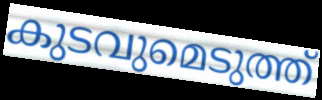
കുടവുമെടുത്ത്